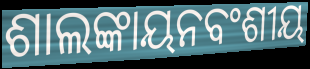
ଶାଲଙ୍କାୟନବଂଶୀୟ